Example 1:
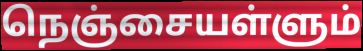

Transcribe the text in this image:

நெஞ்சையள்ளும்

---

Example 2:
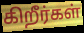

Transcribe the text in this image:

கிறீர்கள்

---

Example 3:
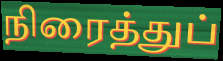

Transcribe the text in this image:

நிரைத்துப்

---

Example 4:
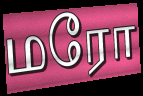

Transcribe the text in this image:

மரோ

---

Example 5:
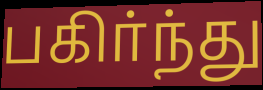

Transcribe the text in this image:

பகிர்ந்து